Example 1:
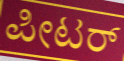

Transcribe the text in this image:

ಪೀಟರ್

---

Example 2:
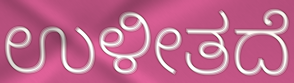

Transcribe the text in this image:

ಉಳೀತದೆ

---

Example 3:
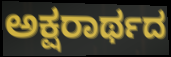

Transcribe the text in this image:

ಅಕ್ಷರಾರ್ಥದ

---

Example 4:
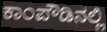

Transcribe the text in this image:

ಕಾಂಪೌಡಿನಲ್ಲಿ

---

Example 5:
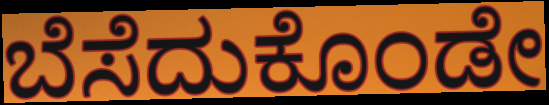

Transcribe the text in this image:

ಬೆಸೆದುಕೊಂಡೇ